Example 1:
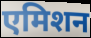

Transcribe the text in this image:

एमिशन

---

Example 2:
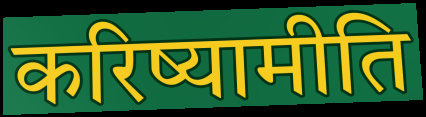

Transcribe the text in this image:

करिष्यामीति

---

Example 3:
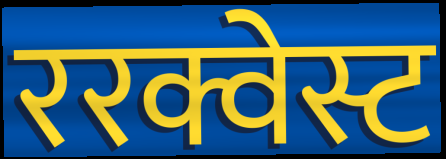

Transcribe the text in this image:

ररक्वेस्ट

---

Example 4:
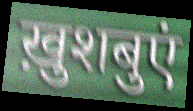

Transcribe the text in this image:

ख़ुशबुएं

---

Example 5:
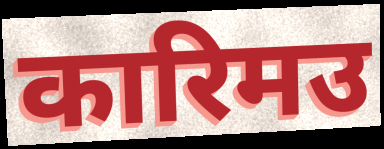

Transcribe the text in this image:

कारिमउ